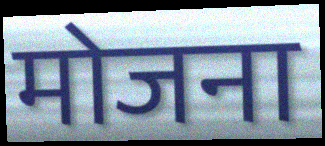
मोजना